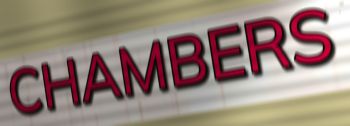
CHAMBERS